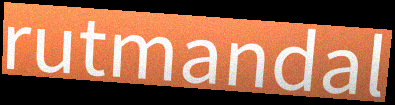
rutmandal